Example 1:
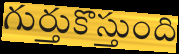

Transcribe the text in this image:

గుర్తుకొస్తుంది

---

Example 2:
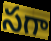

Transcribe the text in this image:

సగా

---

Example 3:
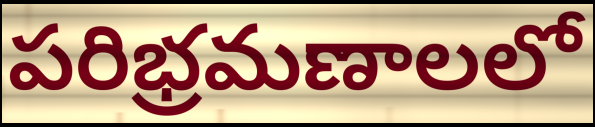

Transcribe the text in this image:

పరిభ్రమణాలలో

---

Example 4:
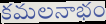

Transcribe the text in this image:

కమలనాభం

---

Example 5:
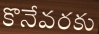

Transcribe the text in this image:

కొనేవరకు